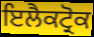
ਇਲੈਕਟ੍ਰੋਕ